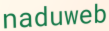
naduweb